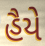
હૈયે